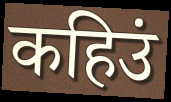
कहिउं